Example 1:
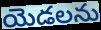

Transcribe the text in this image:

యెడలను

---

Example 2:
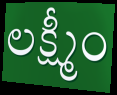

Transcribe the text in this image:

లక్ష్మీం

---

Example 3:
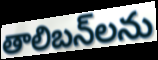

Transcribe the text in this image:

తాలిబన్‌లను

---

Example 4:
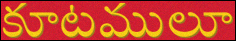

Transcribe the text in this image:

కూటములూ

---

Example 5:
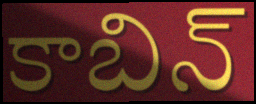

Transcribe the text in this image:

కాబిన్